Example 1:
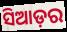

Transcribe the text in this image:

ସିଆଡ଼ର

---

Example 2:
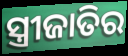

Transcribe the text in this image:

ସ୍ତ୍ରୀଜାତିର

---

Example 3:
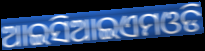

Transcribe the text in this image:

ଆଇସିଆଇଏମଓଡି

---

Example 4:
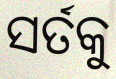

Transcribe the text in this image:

ସର୍ତକୁ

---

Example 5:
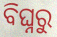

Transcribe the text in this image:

ବିଘ୍ନରୁ